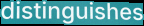
distinguishes